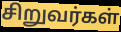
சிறுவர்கள்